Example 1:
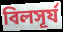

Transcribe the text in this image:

বিলসূর্য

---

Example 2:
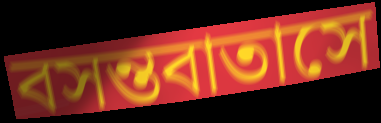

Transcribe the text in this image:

বসন্তবাতাসে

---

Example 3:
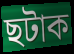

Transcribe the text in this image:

ছটাক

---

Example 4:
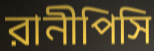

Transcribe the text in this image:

রানীপিসি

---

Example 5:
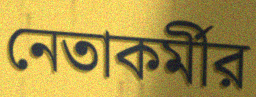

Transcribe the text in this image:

নেতাকর্মীর